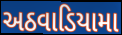
અઠવાડિયામા